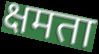
क्षमता